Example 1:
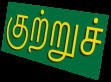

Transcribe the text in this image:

குற்றுச்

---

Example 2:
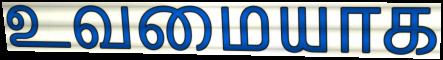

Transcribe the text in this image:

உவமையாக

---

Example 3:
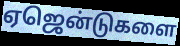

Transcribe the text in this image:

ஏஜென்டுகளை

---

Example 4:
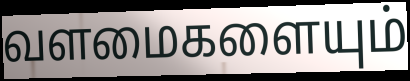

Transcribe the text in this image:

வளமைகளையும்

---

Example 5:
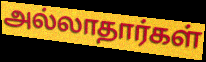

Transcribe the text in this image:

அல்லாதார்கள்